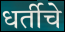
धर्तीचे